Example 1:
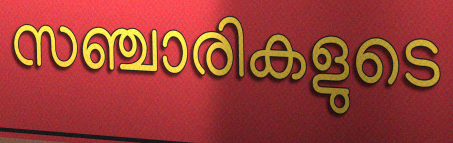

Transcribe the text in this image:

സഞ്ചാരികളുടെ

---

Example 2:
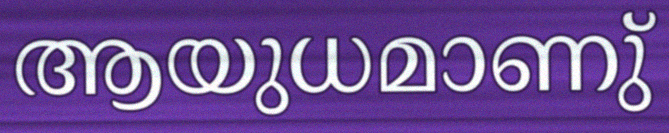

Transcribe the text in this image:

ആയുധമാണു്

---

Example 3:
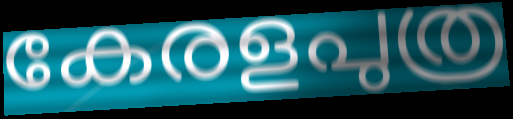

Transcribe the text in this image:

കേരളപുത്ര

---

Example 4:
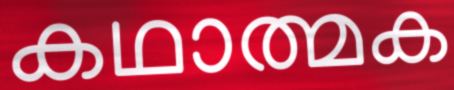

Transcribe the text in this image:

കഥാത്മക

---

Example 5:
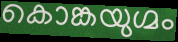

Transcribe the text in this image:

കൊങ്കയുഗ്മം